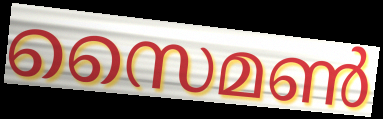
സൈമൺ